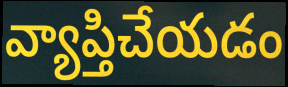
వ్యాప్తిచేయడం